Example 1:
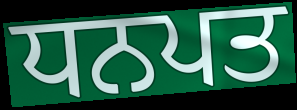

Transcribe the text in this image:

ਧਨਪਤ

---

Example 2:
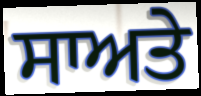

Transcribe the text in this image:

ਸਾਅਤੇ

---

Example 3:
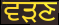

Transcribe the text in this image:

ਵੜਣ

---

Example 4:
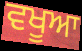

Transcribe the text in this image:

ਵਖੂਆ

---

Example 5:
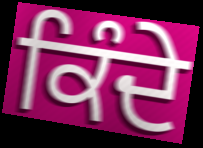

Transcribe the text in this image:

ਕਿੰਦੇ